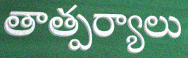
తాత్పర్యాలు